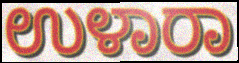
ಉಳಾರಾ